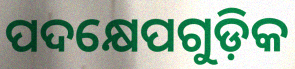
ପଦକ୍ଷେପଗୁଡ଼ିକ